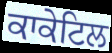
ਕਾਕੇਟਿਲ